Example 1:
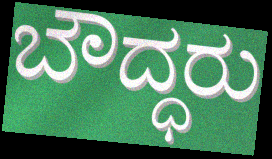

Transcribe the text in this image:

ಬೌದ್ಧರು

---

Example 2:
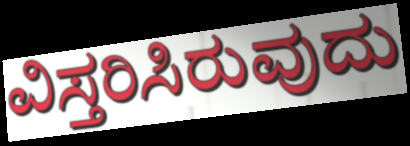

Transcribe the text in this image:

ವಿಸ್ತರಿಸಿರುವುದು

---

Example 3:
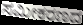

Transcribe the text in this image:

ಸಮೀಕರಣದ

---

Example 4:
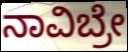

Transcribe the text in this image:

ನಾವಿಬ್ರೇ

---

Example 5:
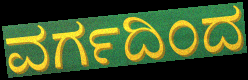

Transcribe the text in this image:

ವರ್ಗದಿಂದ